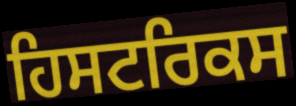
ਹਿਸਟਰਿਕਸ